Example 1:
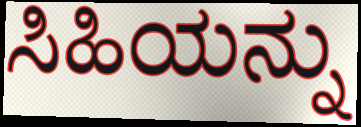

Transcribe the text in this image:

ಸಿಹಿಯನ್ನು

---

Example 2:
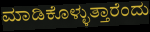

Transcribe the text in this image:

ಮಾಡಿಕೊಳ್ಳುತ್ತಾರೆಂದು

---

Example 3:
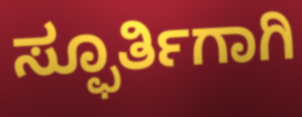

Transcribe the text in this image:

ಸ್ಫೂರ್ತಿಗಾಗಿ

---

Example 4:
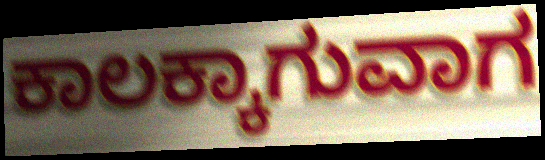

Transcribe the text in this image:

ಕಾಲಕ್ಕಾಗುವಾಗ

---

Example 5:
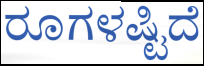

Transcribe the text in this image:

ರೂಗಳಷ್ಟಿದೆ